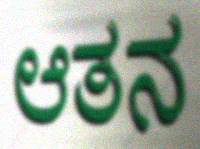
ಆತನ